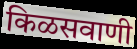
किळसवाणी